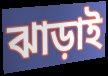
ঝাড়াই